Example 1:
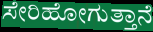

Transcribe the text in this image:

ಸೇರಿಹೋಗುತ್ತಾನೆ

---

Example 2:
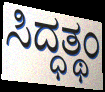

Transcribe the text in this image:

ಸಿದ್ಧತ್ಥಂ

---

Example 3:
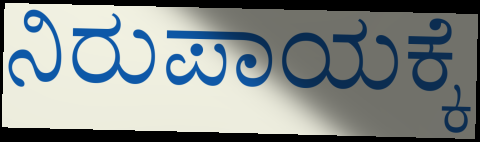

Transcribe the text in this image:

ನಿರುಪಾಯಕ್ಕೆ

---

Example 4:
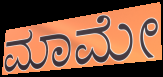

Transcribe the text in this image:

ಮಾಮೇ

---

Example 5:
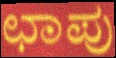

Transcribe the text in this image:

ಛಾಪು